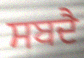
ਸਬਦੈ